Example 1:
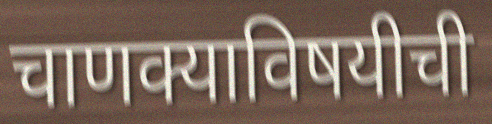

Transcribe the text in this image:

चाणक्याविषयीची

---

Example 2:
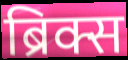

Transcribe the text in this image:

ब्रिक्स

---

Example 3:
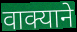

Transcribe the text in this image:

वाक्याने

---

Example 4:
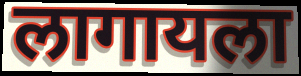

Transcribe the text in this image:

लागायला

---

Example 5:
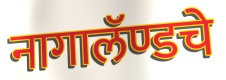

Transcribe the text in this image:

नागालॅण्डचे